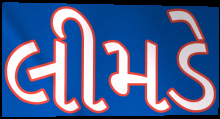
લીમડે